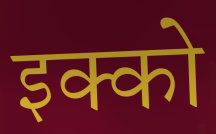
इक्को